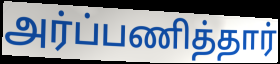
அர்ப்பணித்தார்